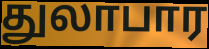
துலாபார